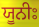
ਯੂਨੀਃ